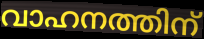
വാഹനത്തിന്